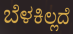
ಬೆಳಕಿಲ್ಲದೆ